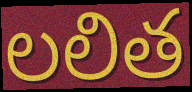
లలిత